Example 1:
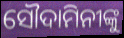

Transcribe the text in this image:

ସୌଦାମିନୀଙ୍କୁ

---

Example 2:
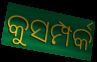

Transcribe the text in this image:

କୁସମ୍ପର୍କ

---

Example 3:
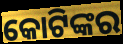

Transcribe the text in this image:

କୋଟିଙ୍କର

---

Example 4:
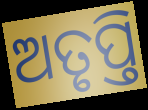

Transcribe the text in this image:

ଅତୃପ୍ତି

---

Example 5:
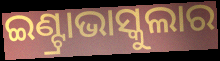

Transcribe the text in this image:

ଇଣ୍ଟ୍ରାଭାସ୍କୁଲାର